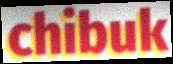
chibuk